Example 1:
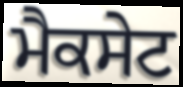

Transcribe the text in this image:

ਮੈਕਸੇਟ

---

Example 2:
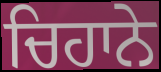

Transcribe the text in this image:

ਚਿਹਾਨੇ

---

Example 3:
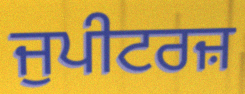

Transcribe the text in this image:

ਜੁਪੀਟਰਜ਼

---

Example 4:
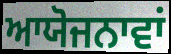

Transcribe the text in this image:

ਆਯੋਜਨਾਵਾਂ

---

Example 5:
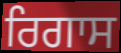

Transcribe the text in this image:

ਰਿਗਾਸ